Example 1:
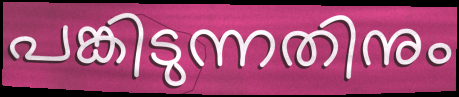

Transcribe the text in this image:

പങ്കിടുന്നതിനും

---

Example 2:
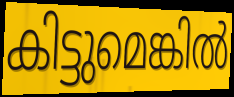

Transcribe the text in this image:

കിട്ടുമെങ്കിൽ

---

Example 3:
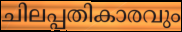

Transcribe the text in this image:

ചിലപ്പതികാരവും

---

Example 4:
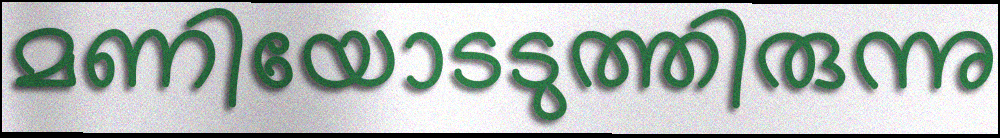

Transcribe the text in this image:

മണിയോടടുത്തിരുന്നു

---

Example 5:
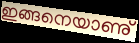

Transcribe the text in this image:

ഇങ്ങനെയാണു്